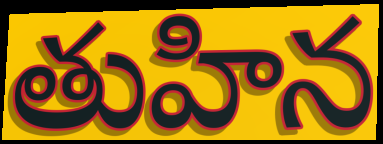
తుహిన